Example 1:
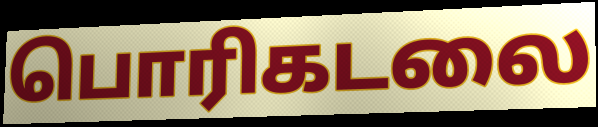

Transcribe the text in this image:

பொரிகடலை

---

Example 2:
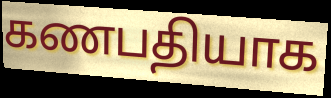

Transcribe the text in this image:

கணபதியாக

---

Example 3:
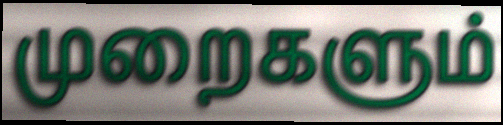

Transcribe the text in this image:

முறைகளும்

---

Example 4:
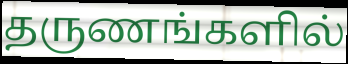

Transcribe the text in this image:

தருணங்களில்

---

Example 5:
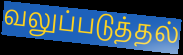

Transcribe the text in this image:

வலுப்படுத்தல்